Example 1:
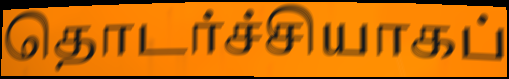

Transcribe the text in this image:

தொடர்ச்சியாகப்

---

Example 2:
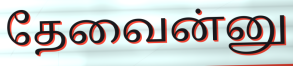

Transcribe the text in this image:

தேவைன்னு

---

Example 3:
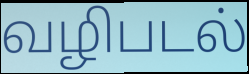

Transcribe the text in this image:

வழிபடல்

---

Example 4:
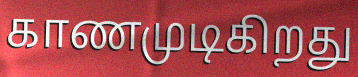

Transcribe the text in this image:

காணமுடிகிறது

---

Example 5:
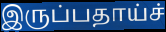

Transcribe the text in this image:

இருப்பதாய்ச்